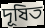
দূষিত